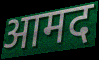
आमद